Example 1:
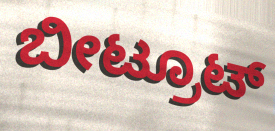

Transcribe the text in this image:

ಬೀಟ್ರೂಟ್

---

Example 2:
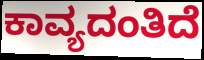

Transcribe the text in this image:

ಕಾವ್ಯದಂತಿದೆ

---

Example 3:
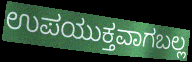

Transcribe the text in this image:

ಉಪಯುಕ್ತವಾಗಬಲ್ಲ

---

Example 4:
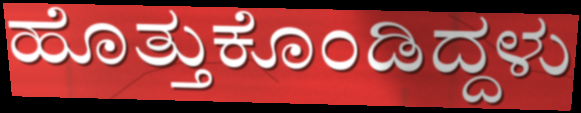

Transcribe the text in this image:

ಹೊತ್ತುಕೊಂಡಿದ್ದಳು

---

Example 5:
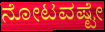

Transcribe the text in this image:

ನೋಟವಷ್ಟೇ